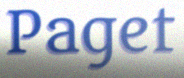
Paget